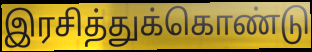
இரசித்துக்கொண்டு